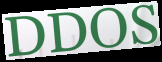
DDOS